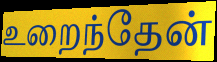
உறைந்தேன்